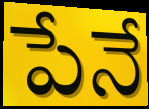
పేనే